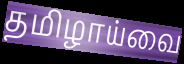
தமிழாய்வை